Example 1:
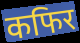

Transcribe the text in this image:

कफिर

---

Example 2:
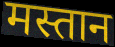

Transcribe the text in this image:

मस्तान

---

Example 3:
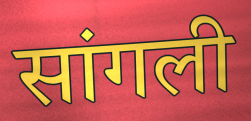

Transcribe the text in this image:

सांगली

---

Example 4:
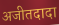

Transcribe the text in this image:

अजीतदादा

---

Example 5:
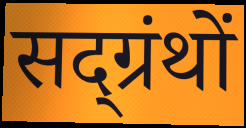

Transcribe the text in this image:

सद्ग्रंथों